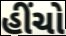
હીંચો